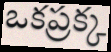
ఒకప్రక్క